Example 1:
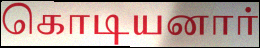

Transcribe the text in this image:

கொடியனார்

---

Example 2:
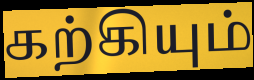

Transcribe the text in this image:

கற்கியும்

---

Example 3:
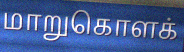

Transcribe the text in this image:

மாறுகொளக்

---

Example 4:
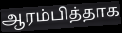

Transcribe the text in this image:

ஆரம்பித்தாக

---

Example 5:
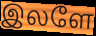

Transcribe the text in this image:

இலளே